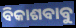
ବିକାଶବାବୁ